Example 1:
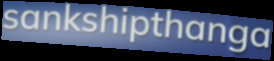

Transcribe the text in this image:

sankshipthanga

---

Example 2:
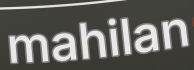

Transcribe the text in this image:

mahilan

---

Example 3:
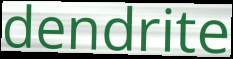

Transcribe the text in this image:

dendrite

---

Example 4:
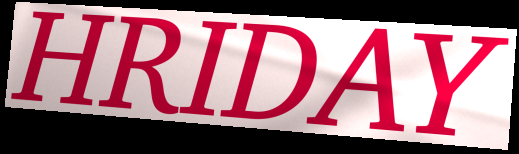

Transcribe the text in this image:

HRIDAY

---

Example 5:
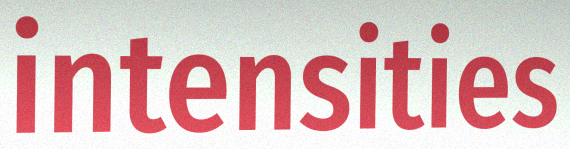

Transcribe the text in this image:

intensities